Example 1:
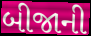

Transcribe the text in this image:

બીજાની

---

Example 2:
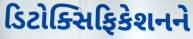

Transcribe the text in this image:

ડિટોક્સિફિકેશનને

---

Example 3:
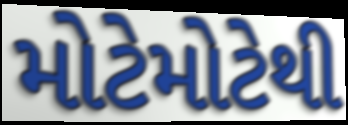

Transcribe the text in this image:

મોટેમોટેથી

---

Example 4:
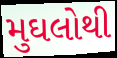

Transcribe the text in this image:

મુઘલોથી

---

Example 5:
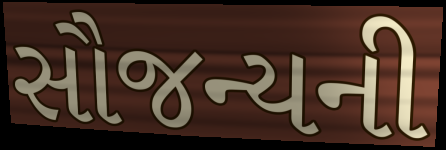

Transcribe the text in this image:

સૌજન્યની